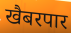
खैबरपार